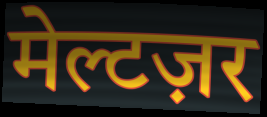
मेल्टज़र